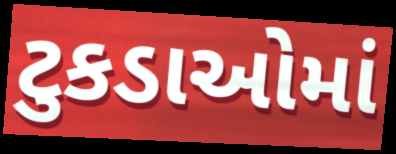
ટુકડાઓમાં